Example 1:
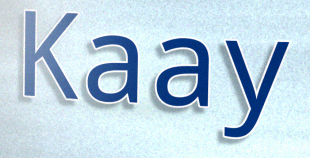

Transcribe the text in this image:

Kaay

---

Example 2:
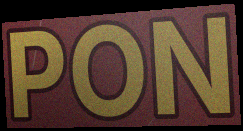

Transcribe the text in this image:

PON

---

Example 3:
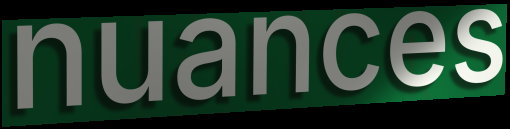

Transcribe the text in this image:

nuances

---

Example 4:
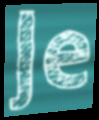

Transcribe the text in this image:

Je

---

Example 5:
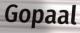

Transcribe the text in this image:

Gopaal